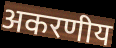
अकरणीय